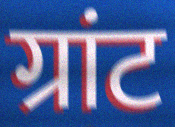
ग्रांट